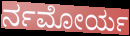
ರ್ನಮೋರ್ಯ